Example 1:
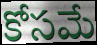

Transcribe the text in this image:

కోసమే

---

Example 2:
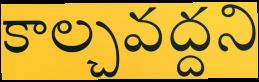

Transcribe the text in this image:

కాల్చవద్దని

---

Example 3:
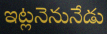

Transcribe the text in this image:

ఇట్లనెనునేడు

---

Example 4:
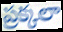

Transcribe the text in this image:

ప్రక్కలా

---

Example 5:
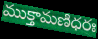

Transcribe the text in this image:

ముక్తామణిధరః